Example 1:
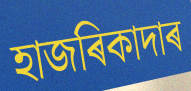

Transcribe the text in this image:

হাজৰিকাদাৰ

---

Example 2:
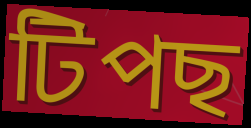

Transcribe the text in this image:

টিপছ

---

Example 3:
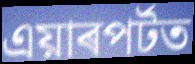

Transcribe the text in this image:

এয়াৰপৰ্টত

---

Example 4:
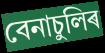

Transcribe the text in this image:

বেনাচুলিৰ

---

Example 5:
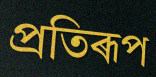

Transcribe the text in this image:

প্ৰতিৰূপ